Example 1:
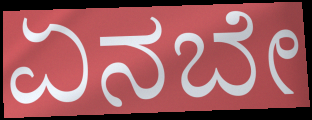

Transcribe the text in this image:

ಏನಬೇ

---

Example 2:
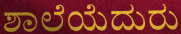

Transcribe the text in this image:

ಶಾಲೆಯೆದುರು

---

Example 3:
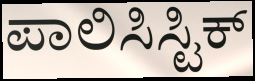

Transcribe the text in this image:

ಪಾಲಿಸಿಸ್ಟಿಕ್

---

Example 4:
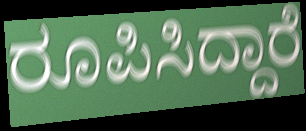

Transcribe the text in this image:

ರೂಪಿಸಿದ್ದಾರೆ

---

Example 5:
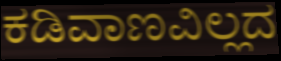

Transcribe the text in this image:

ಕಡಿವಾಣವಿಲ್ಲದ